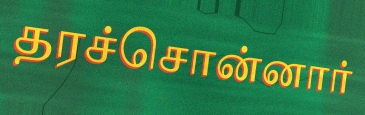
தரச்சொன்னார்